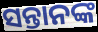
ସନ୍ତାନଙ୍କ